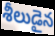
శీలుడైన